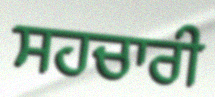
ਸਹਚਾਰੀ